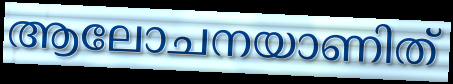
ആലോചനയാണിത്